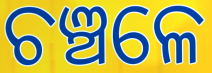
ଚଞ୍ଚଳେ